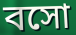
বসো